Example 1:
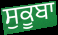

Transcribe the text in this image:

ਸੁਕੂਬਾ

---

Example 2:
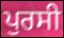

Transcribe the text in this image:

ਪੁਰਸੀ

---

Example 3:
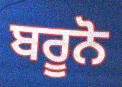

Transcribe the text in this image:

ਬਰੂਨੋ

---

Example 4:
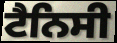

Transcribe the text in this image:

ਟੈਨਿਸੀ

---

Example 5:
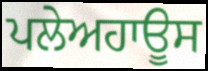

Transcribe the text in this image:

ਪਲੇਅਹਾਊਸ